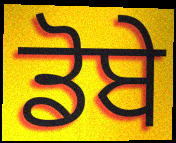
ਡੋਬੇ